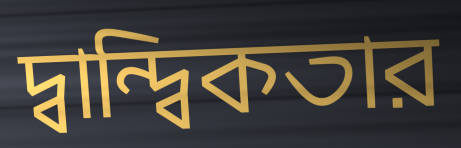
দ্বান্দ্বিকতার